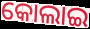
କୋଲାଇ